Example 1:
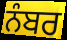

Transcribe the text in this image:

ਨੰਬਰ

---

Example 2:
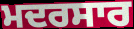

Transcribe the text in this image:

ਮਦਰਸਾਰ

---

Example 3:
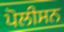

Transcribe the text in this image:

ਪੋਲੀਸਨ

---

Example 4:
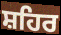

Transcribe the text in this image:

ਸ਼ਹਿਰ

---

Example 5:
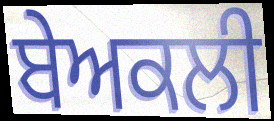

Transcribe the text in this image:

ਬੇਅਕਲੀ